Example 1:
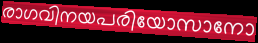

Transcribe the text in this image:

രാഗവിനയപരിയോസാനോ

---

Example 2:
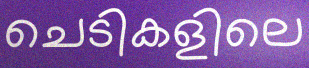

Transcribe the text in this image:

ചെടികളിലെ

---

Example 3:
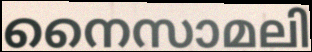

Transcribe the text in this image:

നൈസാമലി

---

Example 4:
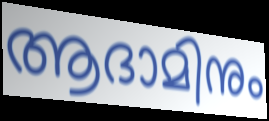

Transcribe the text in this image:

ആദാമിനും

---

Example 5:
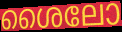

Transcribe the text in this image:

ശൈലോ